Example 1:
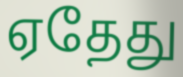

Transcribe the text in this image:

ஏதேது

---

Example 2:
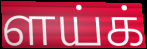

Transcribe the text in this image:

ளய்க்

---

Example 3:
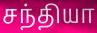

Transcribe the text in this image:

சந்தியா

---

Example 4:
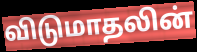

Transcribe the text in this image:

விடுமாதலின்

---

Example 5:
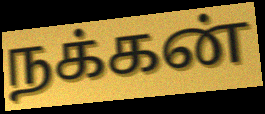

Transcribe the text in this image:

நக்கன்